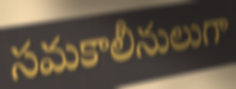
సమకాలీనులుగా